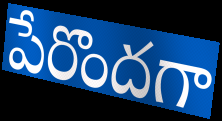
పేరొందగా